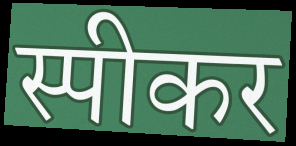
स्पीकर